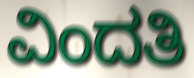
ವಿಂದತಿ